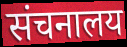
संचनालय